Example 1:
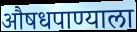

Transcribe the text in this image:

औषधपाण्याला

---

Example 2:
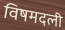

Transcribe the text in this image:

विषमदली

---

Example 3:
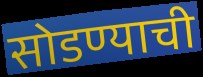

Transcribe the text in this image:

सोडण्याची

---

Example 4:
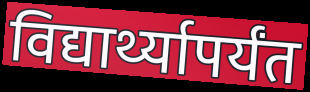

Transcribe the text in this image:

विद्यार्थ्यापर्यंत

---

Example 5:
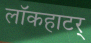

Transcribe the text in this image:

लॉकहाटर्